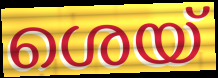
ശെയ്